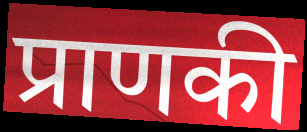
प्राणकी